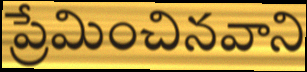
ప్రేమించినవాని